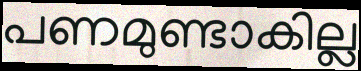
പണമുണ്ടാകില്ല